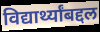
विद्यार्थ्यांबद्दल